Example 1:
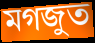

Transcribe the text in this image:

মগজুত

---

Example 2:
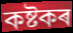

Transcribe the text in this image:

কষ্টকৰ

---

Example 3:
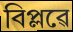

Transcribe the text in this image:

বিপ্লৱে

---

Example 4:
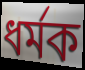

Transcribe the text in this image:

ধৰ্মক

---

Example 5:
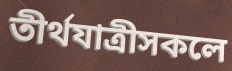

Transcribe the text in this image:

তীৰ্থযাত্ৰীসকলে